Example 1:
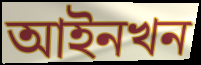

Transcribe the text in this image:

আইনখন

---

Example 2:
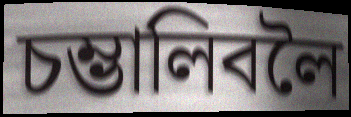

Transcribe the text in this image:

চম্ভালিবলৈ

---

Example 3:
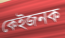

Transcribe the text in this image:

কেইজনক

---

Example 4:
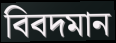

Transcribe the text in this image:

বিবদমান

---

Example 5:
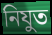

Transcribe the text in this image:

নিযুত